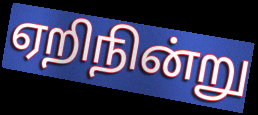
ஏறிநின்று